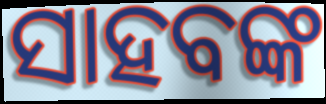
ସାହବଙ୍କ